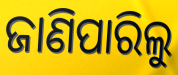
ଜାଣିପାରିଲୁ